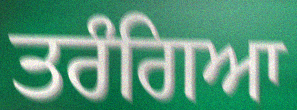
ਤਰੰਗਿਆ